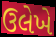
ઉલેખે